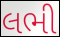
લભી